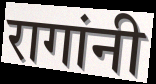
रागांनी